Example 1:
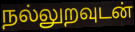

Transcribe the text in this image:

நல்லுறவுடன்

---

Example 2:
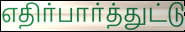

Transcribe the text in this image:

எதிர்பார்த்துட்டு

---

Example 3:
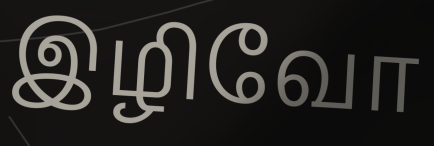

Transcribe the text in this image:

இழிவோ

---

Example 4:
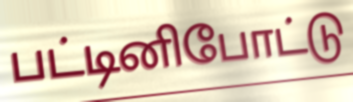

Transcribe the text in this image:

பட்டினிபோட்டு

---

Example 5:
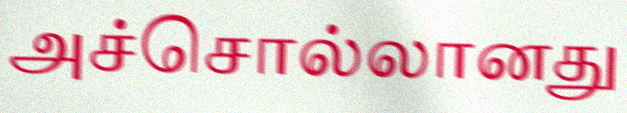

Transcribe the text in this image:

அச்சொல்லானது